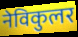
नेविकुलर